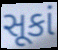
સૂકાં